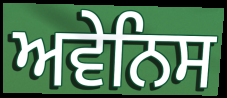
ਅਵੇਨਿਸ